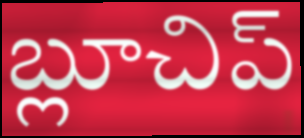
బ్లూచిప్